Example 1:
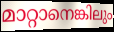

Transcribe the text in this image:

മാറ്റാനെങ്കിലും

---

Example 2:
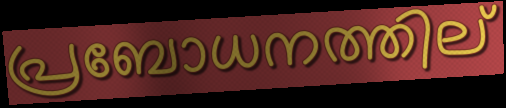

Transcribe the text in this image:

പ്രബോധനത്തില്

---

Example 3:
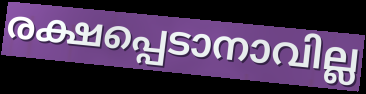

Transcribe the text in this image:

രക്ഷപ്പെടാനാവില്ല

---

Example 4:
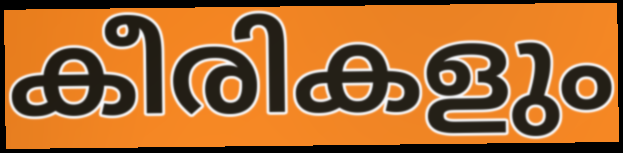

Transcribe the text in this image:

കീരികളും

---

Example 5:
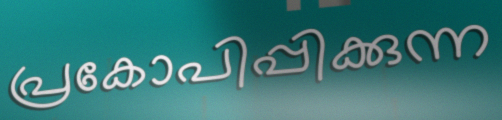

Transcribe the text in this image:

പ്രകോപിപ്പിക്കുന്ന